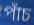
পাঁচ